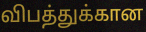
விபத்துக்கான